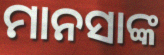
ମାନସାଙ୍କ